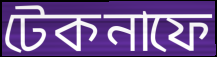
টেকনাফে